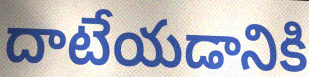
దాటేయడానికి